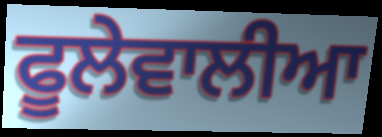
ਫੂਲੇਵਾਲੀਆ